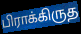
பிராக்கிருத